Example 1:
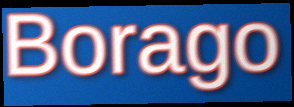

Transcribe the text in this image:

Borago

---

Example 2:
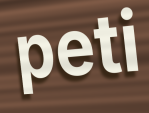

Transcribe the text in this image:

peti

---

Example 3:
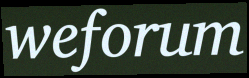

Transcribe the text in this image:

weforum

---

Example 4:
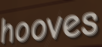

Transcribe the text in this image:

hooves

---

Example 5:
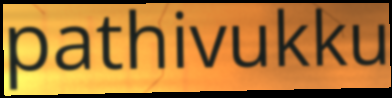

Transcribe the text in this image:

pathivukku